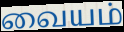
வையம்